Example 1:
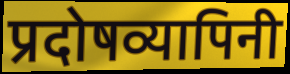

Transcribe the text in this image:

प्रदोषव्यापिनी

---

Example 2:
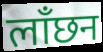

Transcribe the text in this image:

लाँछन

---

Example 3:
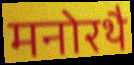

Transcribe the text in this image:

मनोरथै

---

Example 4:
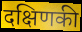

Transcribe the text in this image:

दक्षिणकी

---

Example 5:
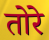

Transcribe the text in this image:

तोरे